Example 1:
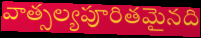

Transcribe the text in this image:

వాత్సల్యపూరితమైనది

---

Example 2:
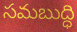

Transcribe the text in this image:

సమబుద్ధి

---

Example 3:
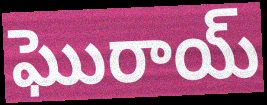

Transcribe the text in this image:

ఘొరాయ్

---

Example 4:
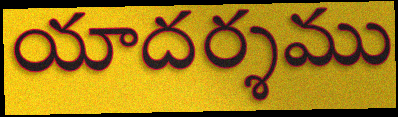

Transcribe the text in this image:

యాదర్శము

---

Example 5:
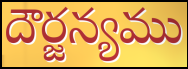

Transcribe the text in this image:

దౌర్జన్యము